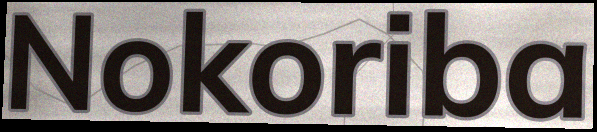
Nokoriba